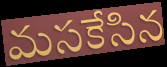
మసకేసిన